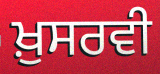
ਖ਼ੁਸਰਵੀ